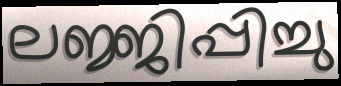
ലജ്ജിപ്പിച്ചു